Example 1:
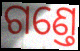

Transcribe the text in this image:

ଗଣ୍ତେ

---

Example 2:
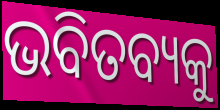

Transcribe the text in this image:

ଭବିତବ୍ୟକୁ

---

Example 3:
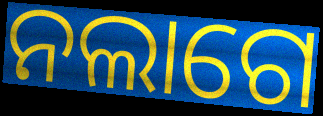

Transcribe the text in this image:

ନଲାଗେ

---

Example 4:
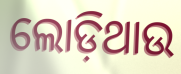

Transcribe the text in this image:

ଲୋଡ଼ିଥାଉ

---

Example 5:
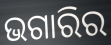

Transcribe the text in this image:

ଭଗାରିର